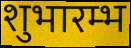
शुभारम्‍भ